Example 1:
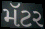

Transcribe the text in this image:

મૅટર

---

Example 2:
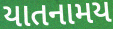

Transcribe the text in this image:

યાતનામય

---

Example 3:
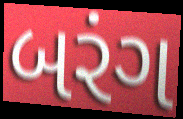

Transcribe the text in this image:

બરંગ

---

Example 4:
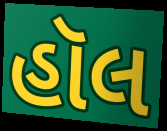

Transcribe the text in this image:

હૉલ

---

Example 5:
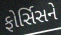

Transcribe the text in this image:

ફોર્સિસને